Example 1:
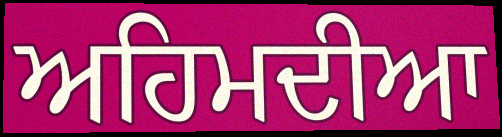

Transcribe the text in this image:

ਅਹਿਮਦੀਆ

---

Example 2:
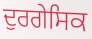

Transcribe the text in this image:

ਦੁਰਗੇਸਿਕ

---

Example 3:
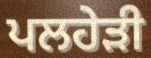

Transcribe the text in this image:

ਪਲਹੇੜੀ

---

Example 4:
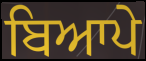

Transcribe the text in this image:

ਬਿਆਪੇ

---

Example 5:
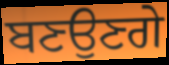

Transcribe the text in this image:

ਬਣਉਣਗੇ